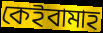
কেইবামাহ